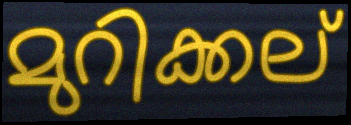
മുറിക്കല്